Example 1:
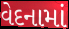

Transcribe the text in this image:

વેદનામાં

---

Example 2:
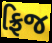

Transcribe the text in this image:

ફ્રિજ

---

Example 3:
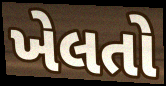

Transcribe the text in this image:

ખેલતો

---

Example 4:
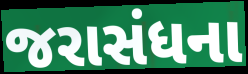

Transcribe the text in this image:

જરાસંધના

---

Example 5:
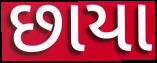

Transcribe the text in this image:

છાયા